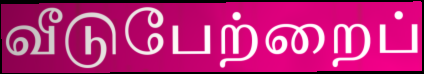
வீடுபேற்றைப்